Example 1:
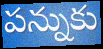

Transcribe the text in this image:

పన్నుకు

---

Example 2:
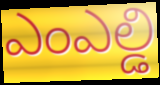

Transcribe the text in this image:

ఎంఎల్డి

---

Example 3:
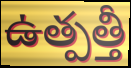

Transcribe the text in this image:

ఉత్పత్తీ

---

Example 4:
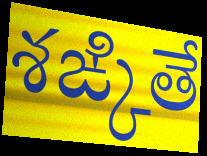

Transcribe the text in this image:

శఙ్కితే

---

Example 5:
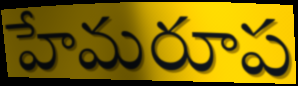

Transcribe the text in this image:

హేమరూప